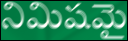
నిమిషమై